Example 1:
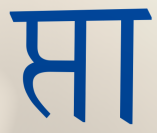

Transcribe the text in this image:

प्ता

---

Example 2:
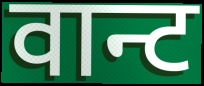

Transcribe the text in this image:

वान्ट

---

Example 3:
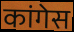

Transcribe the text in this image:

कांगेस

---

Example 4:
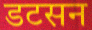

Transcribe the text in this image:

डटसन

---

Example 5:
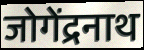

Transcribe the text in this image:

जोगेंद्रनाथ